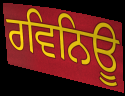
ਰਵਿਨਿਊ